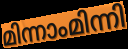
മിന്നാംമിന്നി